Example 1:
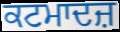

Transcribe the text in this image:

ਕਟਮਾਦਜ਼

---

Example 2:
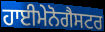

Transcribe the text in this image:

ਹਾਈਮੇਨੋਗੈਸਟਰ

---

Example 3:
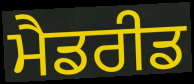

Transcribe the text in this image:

ਮੈਡਰੀਡ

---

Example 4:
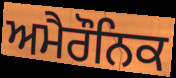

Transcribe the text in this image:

ਅਮੈਰੌਨਿਕ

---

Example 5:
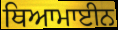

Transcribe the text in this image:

ਥਿਆਮਾਈਨ